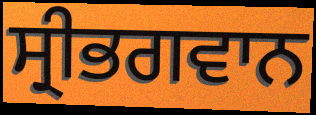
ਸ੍ਰੀਭਗਵਾਨ